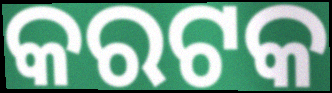
କରଟକ